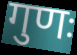
गुणः